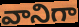
వానిగా